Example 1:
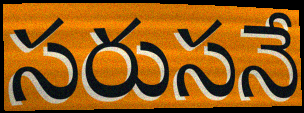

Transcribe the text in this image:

సరుసనే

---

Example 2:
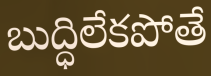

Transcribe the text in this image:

బుద్ధిలేకపోతే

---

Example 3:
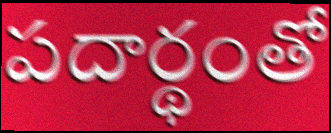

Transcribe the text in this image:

పదార్థంతో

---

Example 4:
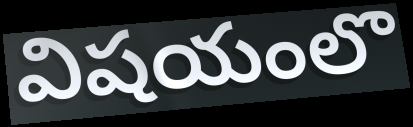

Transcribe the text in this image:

విషయంలొ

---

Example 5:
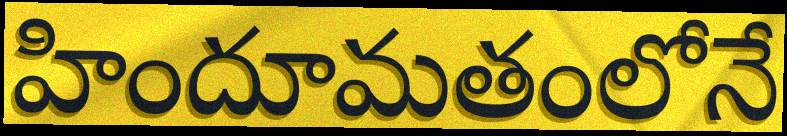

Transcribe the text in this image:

హిందూమతంలోనే